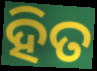
ହିତ